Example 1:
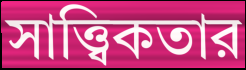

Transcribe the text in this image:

সাত্ত্বিকতার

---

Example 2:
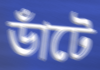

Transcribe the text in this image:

ডাঁটে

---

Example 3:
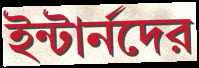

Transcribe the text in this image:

ইন্টার্নদের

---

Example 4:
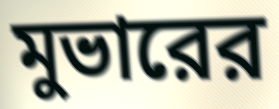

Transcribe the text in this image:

মুভারের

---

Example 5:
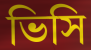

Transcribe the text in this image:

ভিসি